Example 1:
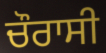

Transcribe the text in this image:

ਚੌਰਾਸੀ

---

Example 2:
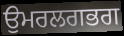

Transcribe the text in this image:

ਉੁਮਰਲਗਭਗ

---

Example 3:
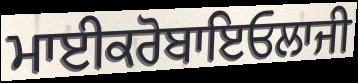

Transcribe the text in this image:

ਮਾਈਕਰੋਬਾਇਓਲਾਜੀ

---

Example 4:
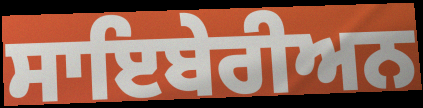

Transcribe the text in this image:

ਸਾਇਬੇਰੀਅਨ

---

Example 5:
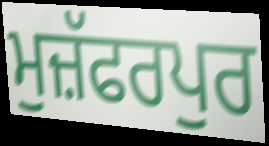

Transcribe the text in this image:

ਮੁਜ਼ੱਫਰਪੁਰ